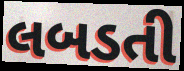
લબડતી